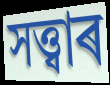
সত্ত্বাৰ